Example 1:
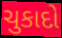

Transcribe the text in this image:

ચુકાદો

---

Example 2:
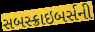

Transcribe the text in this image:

સબસ્ક્રાઇબર્સની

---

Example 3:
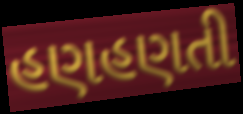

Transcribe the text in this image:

હણહણતી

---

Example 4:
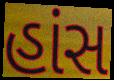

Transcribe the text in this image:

હાંસ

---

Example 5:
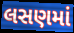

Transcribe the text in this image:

લસણમાં